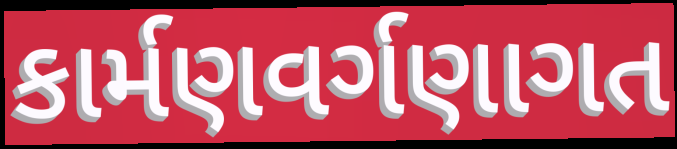
કાર્મણવર્ગણાગત